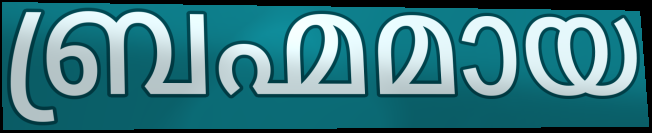
ബ്രഹ്മമായ